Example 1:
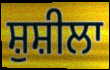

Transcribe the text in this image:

ਸ਼ੁਸ਼ੀਲਾ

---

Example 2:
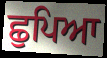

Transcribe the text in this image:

ਛੁਪਿਆ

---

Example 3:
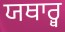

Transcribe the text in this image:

ਯਥਾਰ੍ਥ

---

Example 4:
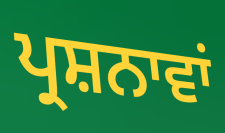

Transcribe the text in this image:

ਪ੍ਰਸ਼ਨਾਵਾਂ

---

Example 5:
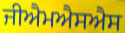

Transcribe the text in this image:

ਜੀਐਮਐਸਐਸ